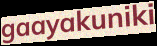
gaayakuniki